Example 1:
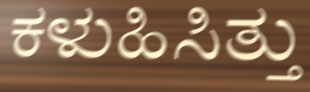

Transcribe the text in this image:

ಕಳುಹಿಸಿತ್ತು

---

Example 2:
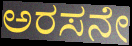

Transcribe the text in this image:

ಅರಸನೇ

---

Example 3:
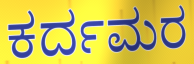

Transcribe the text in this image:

ಕರ್ದಮರ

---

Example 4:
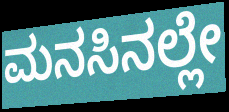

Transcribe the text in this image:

ಮನಸಿನಲ್ಲೇ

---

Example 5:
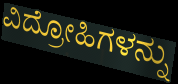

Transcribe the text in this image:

ವಿದ್ರೋಹಿಗಳನ್ನು